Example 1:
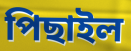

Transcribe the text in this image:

পিছাইল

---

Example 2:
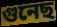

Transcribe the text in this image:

গুনেছ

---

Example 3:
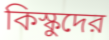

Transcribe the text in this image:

কিস্কুদের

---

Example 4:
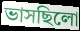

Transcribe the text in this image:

ভাসছিলো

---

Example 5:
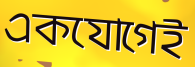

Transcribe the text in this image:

একযোগেই